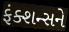
ફંક્શન્સને